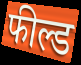
फील्ड